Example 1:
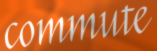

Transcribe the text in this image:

commute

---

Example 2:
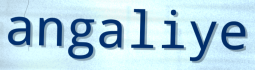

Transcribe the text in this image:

angaliye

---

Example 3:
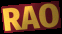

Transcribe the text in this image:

RAO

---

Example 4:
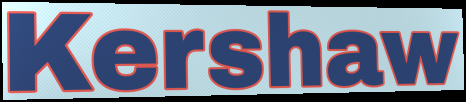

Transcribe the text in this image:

Kershaw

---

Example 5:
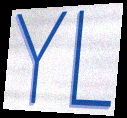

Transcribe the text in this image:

YL